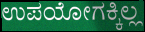
ಉಪಯೋಗಕ್ಕಿಲ್ಲ